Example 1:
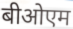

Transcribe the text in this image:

बीओएम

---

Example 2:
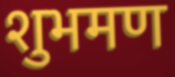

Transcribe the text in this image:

शुभमण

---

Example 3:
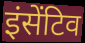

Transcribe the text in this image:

इंसेंटिव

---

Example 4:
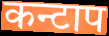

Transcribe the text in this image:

कन्टाप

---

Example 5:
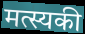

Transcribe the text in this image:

मत्स्यकी